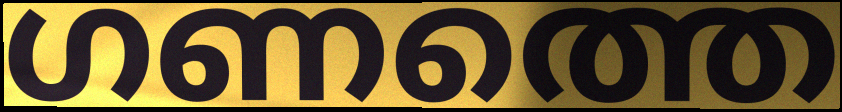
ഗണത്തെ